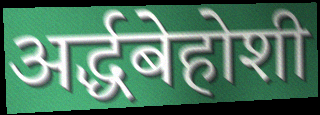
अर्द्धबेहोशी